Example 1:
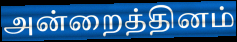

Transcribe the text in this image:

அன்றைத்தினம்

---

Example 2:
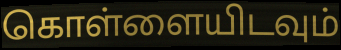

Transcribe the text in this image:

கொள்ளையிடவும்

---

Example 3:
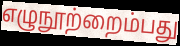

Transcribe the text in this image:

எழுநூற்றைம்பது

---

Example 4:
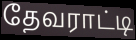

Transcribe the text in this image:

தேவராட்டி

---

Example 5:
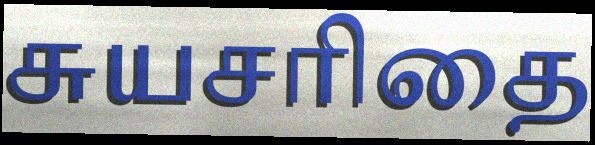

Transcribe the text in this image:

சுயசரிதை